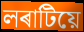
লৰাটিয়ে